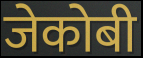
जेकोबी